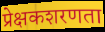
प्रेक्षकशरणता